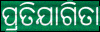
ପ୍ରତିଯାଗିତା